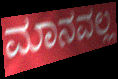
ಮಾನವಲ್ಲ